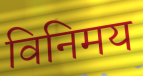
विनिमय